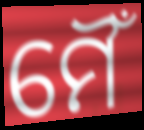
ମୈଁ